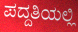
ಪದ್ದತಿಯಲ್ಲಿ